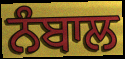
ਨੰਬਾਲ